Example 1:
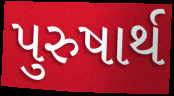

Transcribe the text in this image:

પુરુષાર્થ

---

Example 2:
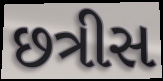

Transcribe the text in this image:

છત્રીસ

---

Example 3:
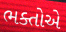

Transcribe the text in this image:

ભક્તોએ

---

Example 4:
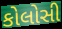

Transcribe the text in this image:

કોલોસી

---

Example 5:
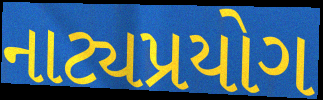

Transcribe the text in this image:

નાટ્યપ્રયોગ